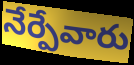
నేర్పేవారు